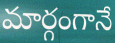
మార్గంగానే